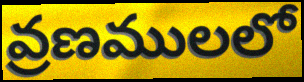
వ్రణములలో